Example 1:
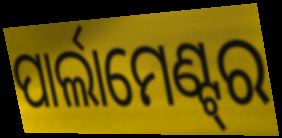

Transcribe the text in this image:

ପାର୍ଲାମେଣ୍ଟ୍‌ର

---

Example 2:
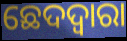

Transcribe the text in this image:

ଛେଦଦ୍ୱାରା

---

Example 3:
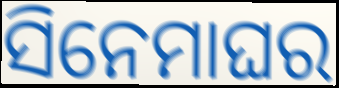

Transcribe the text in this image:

ସିନେମାଘର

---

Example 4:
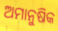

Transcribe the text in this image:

ଅମାନୁଷିକ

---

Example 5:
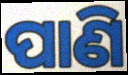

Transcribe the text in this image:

ପାଣି